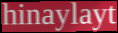
hinaylayt